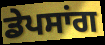
ਡੇਪਸਾਂਗ